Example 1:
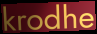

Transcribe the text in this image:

krodhe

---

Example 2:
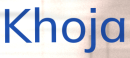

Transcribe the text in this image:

Khoja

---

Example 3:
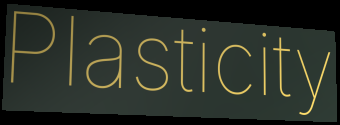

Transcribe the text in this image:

Plasticity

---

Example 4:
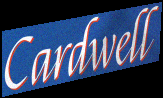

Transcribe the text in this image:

Cardwell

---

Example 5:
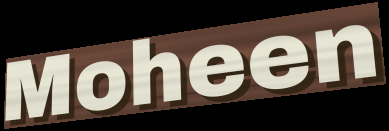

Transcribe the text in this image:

Moheen